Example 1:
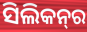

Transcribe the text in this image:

ସିଲିକନ୍‌ର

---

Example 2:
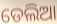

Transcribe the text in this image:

ଡେଲିଆ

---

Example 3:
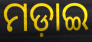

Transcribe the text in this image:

ମଡ଼ାଇ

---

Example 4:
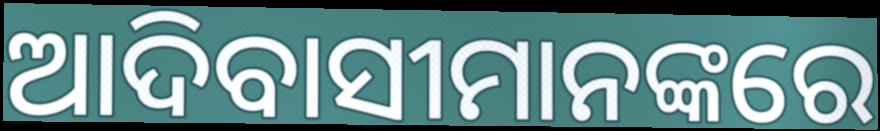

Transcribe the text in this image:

ଆଦିବାସୀମାନଙ୍କରେ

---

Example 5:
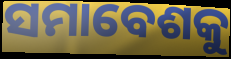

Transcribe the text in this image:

ସମାବେଶକୁ